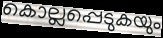
കൊല്ലപ്പെടുകയും